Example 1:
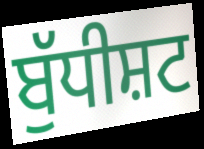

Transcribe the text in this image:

ਬੁੱਧੀਸ਼ਟ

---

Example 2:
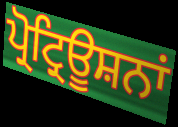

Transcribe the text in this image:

ਪ੍ਰੋਟ੍ਰਿਊਸ਼ਨਾਂ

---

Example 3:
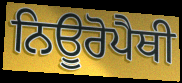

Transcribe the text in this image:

ਨਿਊਰੋਪੈਥੀ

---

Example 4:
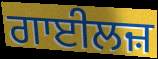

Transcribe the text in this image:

ਗਾਈਲਜ਼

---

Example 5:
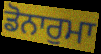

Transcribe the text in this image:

ਡੋਨਾਰੁਮਾ